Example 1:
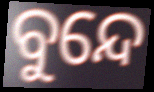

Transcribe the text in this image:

ବୁନ୍ଦେ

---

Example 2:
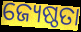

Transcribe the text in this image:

ଜ୍ୟେଷ୍ଠତା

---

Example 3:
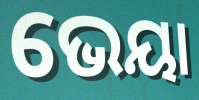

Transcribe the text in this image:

ଭେୟା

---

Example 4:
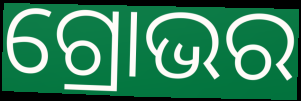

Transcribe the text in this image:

ଗ୍ରୋଭର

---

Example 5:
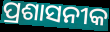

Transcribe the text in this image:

ପ୍ରଶାସନୀକ